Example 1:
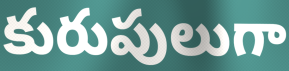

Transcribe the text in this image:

కురుపులుగా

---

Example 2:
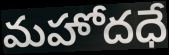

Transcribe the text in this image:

మహోదధే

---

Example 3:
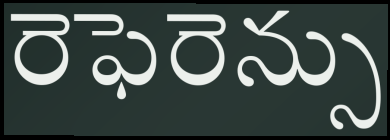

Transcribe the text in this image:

రెఫెరెన్సు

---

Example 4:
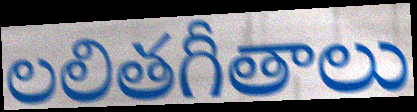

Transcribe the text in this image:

లలితగీతాలు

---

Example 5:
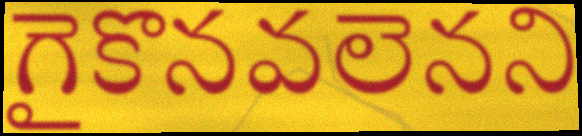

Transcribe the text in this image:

గైకొనవలెనని